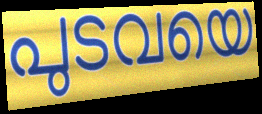
പുടവയെ